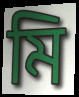
মি